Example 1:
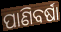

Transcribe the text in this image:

ପାଣିବର୍ଷା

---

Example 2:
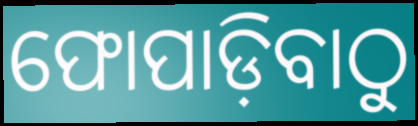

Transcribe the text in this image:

ଫୋପାଡ଼ିବାଠୁ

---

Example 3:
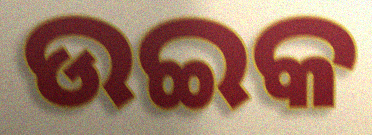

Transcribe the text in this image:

ଉଇକ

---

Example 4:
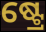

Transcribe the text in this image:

ଷ୍ଟ୍ରେ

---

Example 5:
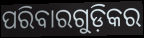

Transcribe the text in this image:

ପରିବାରଗୁଡ଼ିକର